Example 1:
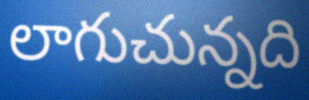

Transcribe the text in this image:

లాగుచున్నది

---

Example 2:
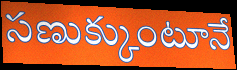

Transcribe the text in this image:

సణుక్కుంటూనే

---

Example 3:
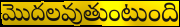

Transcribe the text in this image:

మొదలవుతుంటుంది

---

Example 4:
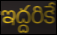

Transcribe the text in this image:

ఇద్దరికే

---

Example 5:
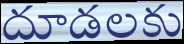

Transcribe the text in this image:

దూడలకు